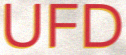
UFD